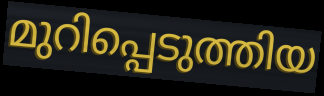
മുറിപ്പെടുത്തിയ